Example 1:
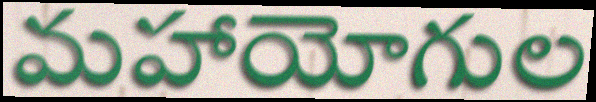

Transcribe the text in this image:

మహాయోగుల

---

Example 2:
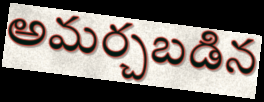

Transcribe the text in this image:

అమర్చబడిన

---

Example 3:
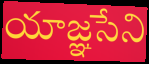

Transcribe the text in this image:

యాజ్ఞసేని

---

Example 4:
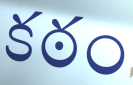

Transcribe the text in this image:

కఠం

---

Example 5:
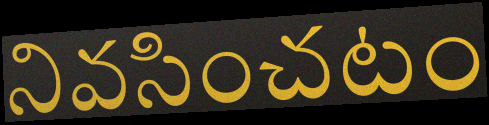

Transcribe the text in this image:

నివసించటం